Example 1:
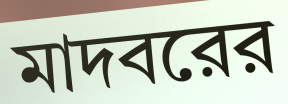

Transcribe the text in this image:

মাদবরের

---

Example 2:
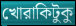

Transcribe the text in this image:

খোরাকিটুকু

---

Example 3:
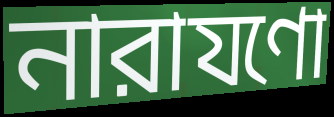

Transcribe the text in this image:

নারাযণো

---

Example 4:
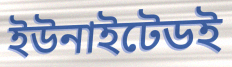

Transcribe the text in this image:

ইউনাইটেডই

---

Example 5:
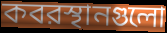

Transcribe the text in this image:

কবরস্থানগুলো